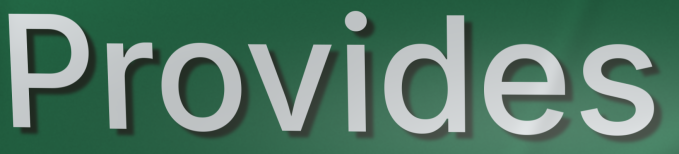
Provides